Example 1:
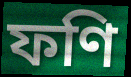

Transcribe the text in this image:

ফণি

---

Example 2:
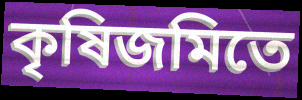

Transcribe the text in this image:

কৃষিজমিতে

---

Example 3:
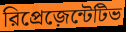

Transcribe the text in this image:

রিপ্রেজ়েন্টেটিভ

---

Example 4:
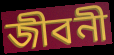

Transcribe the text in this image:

জীবনী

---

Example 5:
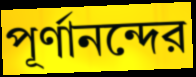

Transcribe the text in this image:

পূর্ণানন্দের